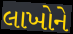
લાખોને